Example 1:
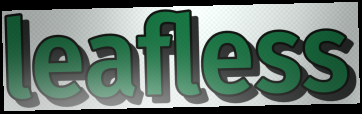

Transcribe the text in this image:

leafless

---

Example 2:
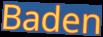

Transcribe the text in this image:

Baden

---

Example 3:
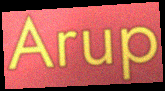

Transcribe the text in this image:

Arup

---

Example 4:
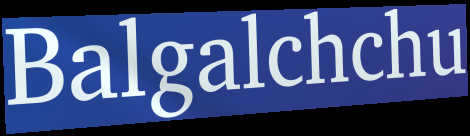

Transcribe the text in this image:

Balgalchchu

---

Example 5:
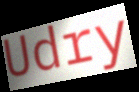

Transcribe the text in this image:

Udry